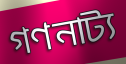
গণনাট্য